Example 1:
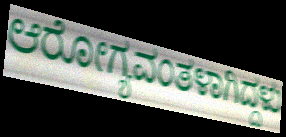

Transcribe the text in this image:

ಆರೋಗ್ಯವಂತಳಾಗಿದ್ದಳು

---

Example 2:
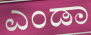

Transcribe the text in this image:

ಎಂಡಾ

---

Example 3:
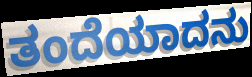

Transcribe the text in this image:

ತಂದೆಯಾದನು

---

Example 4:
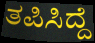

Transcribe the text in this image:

ತಪಿಸಿದ್ದೆ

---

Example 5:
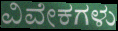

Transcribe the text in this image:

ವಿವೇಕಗಳು